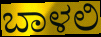
ಬಾಳಲಿ